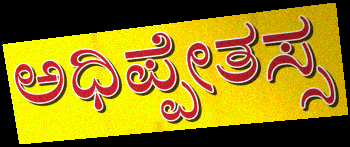
ಅಧಿಪ್ಪೇತಸ್ಸ